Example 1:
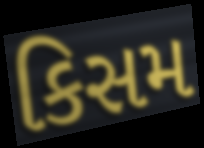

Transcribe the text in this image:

કિસમ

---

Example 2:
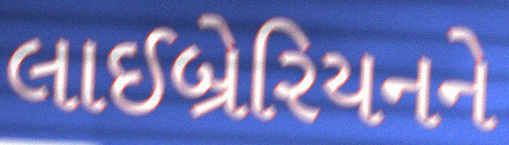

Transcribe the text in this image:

લાઈબ્રેરિયનને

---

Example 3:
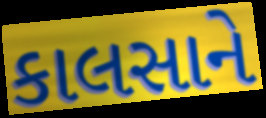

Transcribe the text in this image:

કાલસાને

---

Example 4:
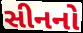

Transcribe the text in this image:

સીનનો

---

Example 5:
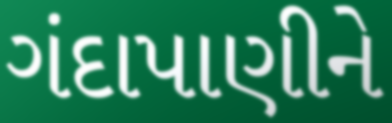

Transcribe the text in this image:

ગંદાપાણીને